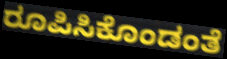
ರೂಪಿಸಿಕೊಂಡಂತೆ